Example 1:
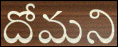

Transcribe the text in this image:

దోమని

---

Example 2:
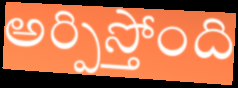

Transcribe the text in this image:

అర్పిస్తోంది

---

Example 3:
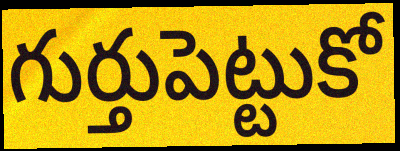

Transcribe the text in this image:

గుర్తుపెట్టుకో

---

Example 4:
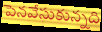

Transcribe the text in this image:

పెనవేసుకున్నది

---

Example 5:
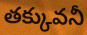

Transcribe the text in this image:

తక్కువనీ